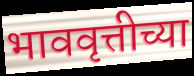
भाववृत्तीच्या